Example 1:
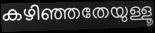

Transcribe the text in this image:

കഴിഞ്ഞതേയുള്ളൂ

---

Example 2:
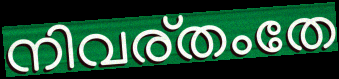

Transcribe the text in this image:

നിവര്തംതേ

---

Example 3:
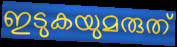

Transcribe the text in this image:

ഇടുകയുമരുത്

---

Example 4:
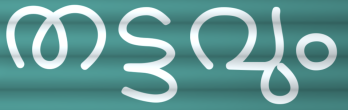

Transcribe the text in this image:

തട്ടവും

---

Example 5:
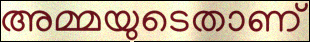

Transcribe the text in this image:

അമ്മയുടെതാണ്